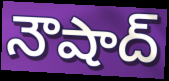
నౌషాద్